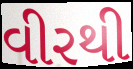
વીરથી